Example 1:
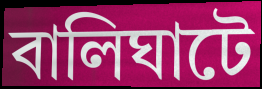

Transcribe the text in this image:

বালিঘাটে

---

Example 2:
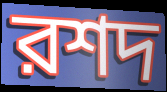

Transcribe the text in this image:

রশদ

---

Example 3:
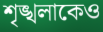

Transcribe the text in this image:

শৃঙ্খলাকেও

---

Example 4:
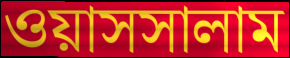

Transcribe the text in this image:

ওয়াসসালাম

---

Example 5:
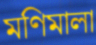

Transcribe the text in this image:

মণিমালা